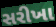
સરીખા